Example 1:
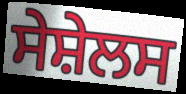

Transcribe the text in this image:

ਸੇਸ਼ੇਲਸ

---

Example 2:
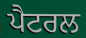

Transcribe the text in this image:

ਪੈਟਰਲ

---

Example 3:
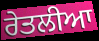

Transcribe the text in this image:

ਰੇਤਲੀਆ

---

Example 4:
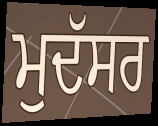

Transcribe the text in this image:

ਮੁਦੱਸਰ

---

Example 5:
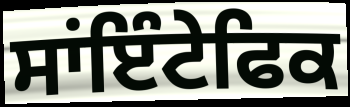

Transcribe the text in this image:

ਸਾਂਇੰਟੇਫਿਕ